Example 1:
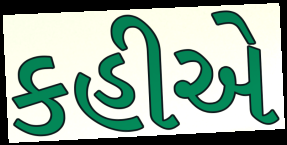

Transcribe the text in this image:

કહીએ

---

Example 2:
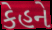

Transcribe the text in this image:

કેહને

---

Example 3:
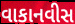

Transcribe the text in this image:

વાકાનવીસ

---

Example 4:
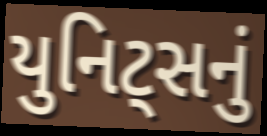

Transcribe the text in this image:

યુનિટ્સનું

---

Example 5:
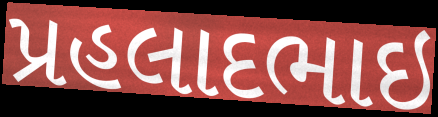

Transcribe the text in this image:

પ્રહલાદભાઇ